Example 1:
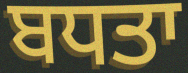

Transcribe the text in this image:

ਬਧਤਾ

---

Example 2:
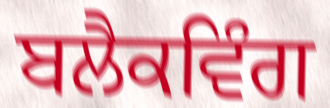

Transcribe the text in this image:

ਬਲੈਕਵਿੰਗ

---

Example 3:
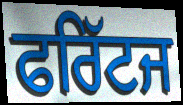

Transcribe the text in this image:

ਫਰਿੱਟਜ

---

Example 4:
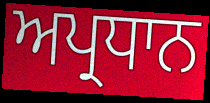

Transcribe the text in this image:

ਅਪ੍ਰਧਾਨ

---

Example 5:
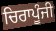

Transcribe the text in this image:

ਚਿਰਾਪੂੰਜੀ